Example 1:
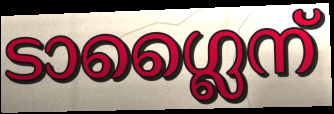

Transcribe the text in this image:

ടാഗ്ലൈന്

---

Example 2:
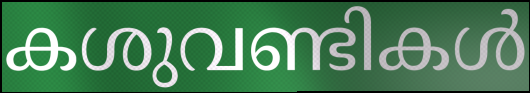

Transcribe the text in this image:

കശുവണ്ടികൾ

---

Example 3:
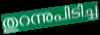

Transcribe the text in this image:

തുറന്നുപിടിച്ച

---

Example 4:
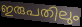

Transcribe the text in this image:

ഇരുപതിലും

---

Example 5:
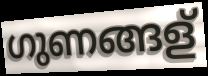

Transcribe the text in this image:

ഗുണങ്ങള്